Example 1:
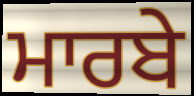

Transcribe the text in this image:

ਮਾਰਬੇ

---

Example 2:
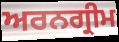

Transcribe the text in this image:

ਅਰਨਗ੍ਰੀਮ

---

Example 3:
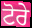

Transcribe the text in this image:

ਟੋਰੇ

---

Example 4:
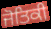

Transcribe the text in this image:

ਜੋਤਿਕੀ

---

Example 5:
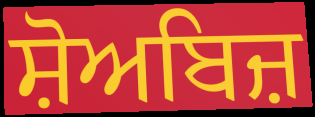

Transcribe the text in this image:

ਸ਼ੋਅਬਿਜ਼